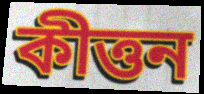
কীত্তন